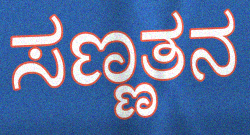
ಸಣ್ಣತನ